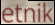
etnik